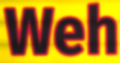
Weh